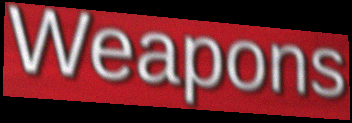
Weapons